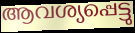
ആവശ്യപ്പെട്ടു